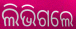
ଲିଭିଗଲେ